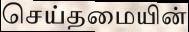
செய்தமையின்